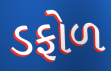
ડફોળ